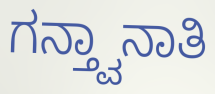
ಗನ್ತ್ವಾನಾತಿ